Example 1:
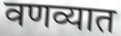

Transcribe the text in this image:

वणव्यात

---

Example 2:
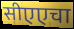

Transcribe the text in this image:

सीएएचा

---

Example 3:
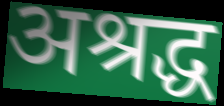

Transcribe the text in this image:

अश्रद्ध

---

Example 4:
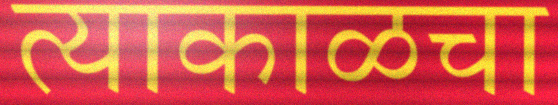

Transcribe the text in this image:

त्याकाळचा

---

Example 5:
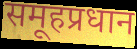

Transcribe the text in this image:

समूहप्रधान